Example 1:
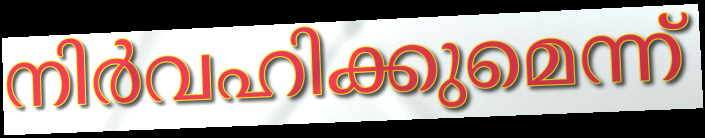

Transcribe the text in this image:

നിർവഹിക്കുമെന്ന്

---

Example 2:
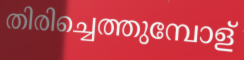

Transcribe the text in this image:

തിരിച്ചെത്തുമ്പോള്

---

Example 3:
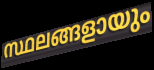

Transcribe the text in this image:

സ്ഥലങ്ങളായും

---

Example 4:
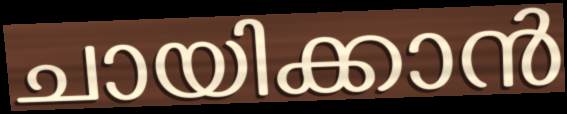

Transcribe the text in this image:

ചായിക്കാൻ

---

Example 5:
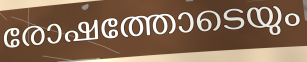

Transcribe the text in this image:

രോഷത്തോടെയും